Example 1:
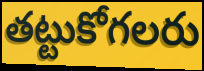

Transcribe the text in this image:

తట్టుకోగలరు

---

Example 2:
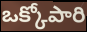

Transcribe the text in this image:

ఒక్కోపారి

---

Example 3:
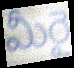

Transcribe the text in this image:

మీరై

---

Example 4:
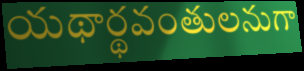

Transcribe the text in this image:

యథార్థవంతులనుగా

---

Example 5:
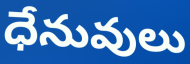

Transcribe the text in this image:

ధేనువులు